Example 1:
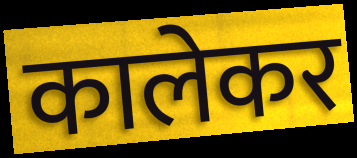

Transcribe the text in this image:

कालेकर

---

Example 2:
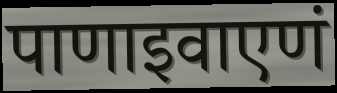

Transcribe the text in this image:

पाणाइवाएणं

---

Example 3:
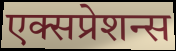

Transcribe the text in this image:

एक्सप्रेशन्स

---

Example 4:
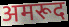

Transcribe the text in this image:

अमरूद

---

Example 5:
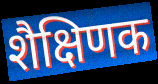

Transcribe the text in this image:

शैक्षिणक